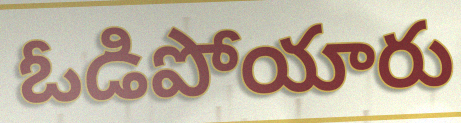
ఓడిపోయారు